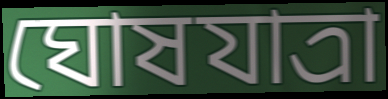
ঘোষযাত্রা